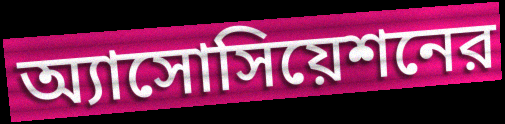
অ্যাসোসিয়েশনের